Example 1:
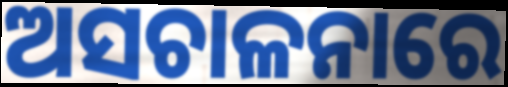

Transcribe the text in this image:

ଅସଚାଳନାରେ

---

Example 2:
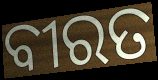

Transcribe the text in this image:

ବୀରତ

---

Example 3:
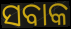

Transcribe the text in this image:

ସବାକ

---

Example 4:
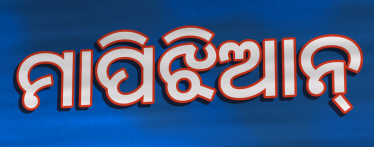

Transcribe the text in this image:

ମାପିଝିଆନ୍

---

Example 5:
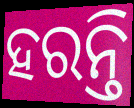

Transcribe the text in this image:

ହରନ୍ତି